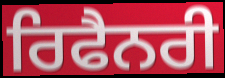
ਰਿਫੈਨਰੀ